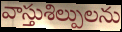
వాస్తుశిల్పులను